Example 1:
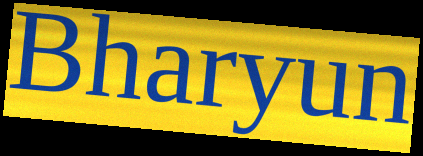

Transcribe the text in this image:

Bharyun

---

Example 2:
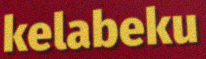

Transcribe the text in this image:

kelabeku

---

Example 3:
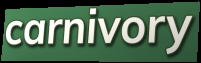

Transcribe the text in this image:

carnivory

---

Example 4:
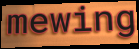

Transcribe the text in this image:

mewing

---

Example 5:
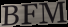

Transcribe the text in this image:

BFM